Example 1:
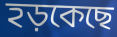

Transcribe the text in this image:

হড়কেছে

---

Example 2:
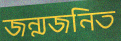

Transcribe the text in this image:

জন্মজনিত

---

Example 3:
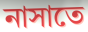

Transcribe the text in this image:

নাসাতে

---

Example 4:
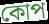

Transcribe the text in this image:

কোপ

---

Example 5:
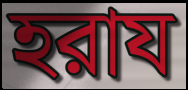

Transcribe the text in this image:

হরায